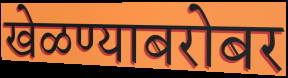
खेळण्याबरोबर